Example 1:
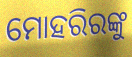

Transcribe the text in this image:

ମୋହରିରଙ୍କୁ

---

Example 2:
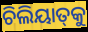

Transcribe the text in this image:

ଚିଲିୟାତ୍‍କୁ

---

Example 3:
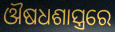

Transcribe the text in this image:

ଔଷଧଶାସ୍ତ୍ରରେ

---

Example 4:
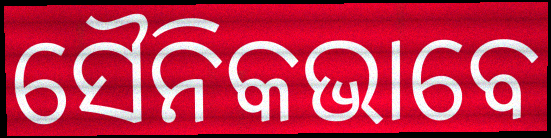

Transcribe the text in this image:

ସୈନିକଭାବେ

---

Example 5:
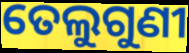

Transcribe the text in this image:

ତେଲୁଗୁଣୀ